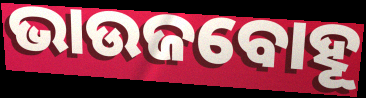
ଭାଉଜବୋହୂ